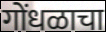
गोंधळाचा